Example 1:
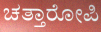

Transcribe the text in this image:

ಚತ್ತಾರೋಪಿ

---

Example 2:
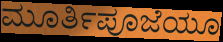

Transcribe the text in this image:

ಮೂರ್ತಿಪೂಜೆಯೂ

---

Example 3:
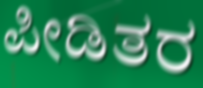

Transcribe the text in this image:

ಪೀಡಿತರ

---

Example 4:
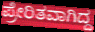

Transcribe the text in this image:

ಪ್ರೇರಿತವಾಗಿದ್ದ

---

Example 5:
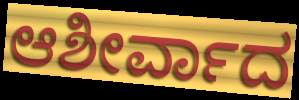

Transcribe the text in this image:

ಆಶೀರ್ವಾದ